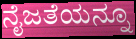
ನೈಜತೆಯನ್ನೂ